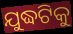
ଯୁଦ୍ଧଟିକୁ